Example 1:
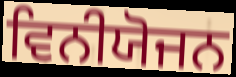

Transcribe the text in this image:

ਵਿਨੀਯੋਜਨ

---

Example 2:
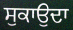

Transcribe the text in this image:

ਸੁਕਾਉਦਾ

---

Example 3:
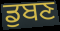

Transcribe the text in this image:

ਡੁਬਣ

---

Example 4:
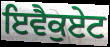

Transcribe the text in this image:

ਇਵੈਕੁਏਟ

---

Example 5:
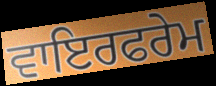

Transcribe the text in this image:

ਵਾਇਰਫਰੇਮ